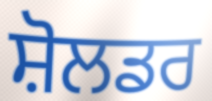
ਸ਼ੋਲਡਰ